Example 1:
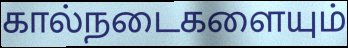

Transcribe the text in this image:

கால்நடைகளையும்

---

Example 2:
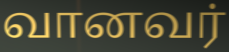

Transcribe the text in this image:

வானவர்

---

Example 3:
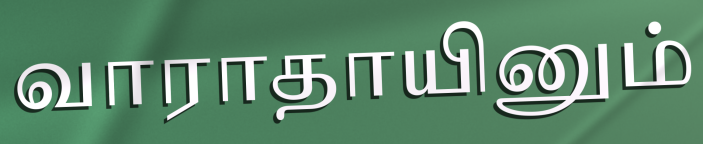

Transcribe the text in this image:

வாராதாயினும்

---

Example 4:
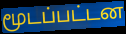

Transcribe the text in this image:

மூடப்பட்டன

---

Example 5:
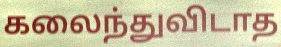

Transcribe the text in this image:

கலைந்துவிடாத